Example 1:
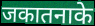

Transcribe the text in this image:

जकातनाके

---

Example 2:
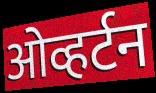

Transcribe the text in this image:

ओव्हर्टन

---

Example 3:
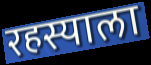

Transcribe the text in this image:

रहस्याला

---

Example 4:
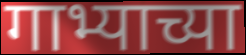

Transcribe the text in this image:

गाभ्याच्या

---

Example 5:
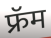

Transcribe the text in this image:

फ्रॅम